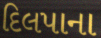
દિલપાના